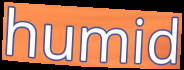
humid